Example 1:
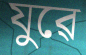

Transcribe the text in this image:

যুৱে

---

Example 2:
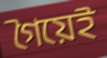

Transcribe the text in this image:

গৈয়েই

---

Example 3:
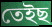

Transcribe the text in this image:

তেইছ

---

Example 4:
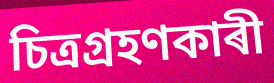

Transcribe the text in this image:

চিত্ৰগ্ৰহণকাৰী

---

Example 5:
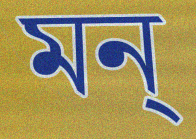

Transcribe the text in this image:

মন্